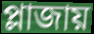
প্লাজায়